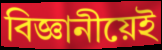
বিজ্ঞানীয়েই